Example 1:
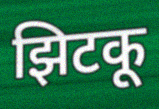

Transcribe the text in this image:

झिटकू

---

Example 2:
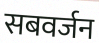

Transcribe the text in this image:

सबवर्जन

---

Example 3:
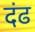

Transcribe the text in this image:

दंढ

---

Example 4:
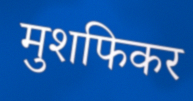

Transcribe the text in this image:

मुशफिकर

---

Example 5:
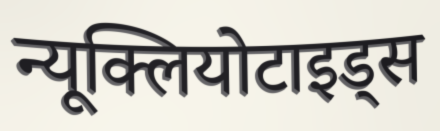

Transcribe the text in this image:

न्यूक्लियोटाइड्स